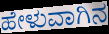
ಹೇಳುವಾಗಿನ